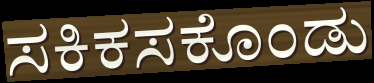
ಸಕಿಕಸಕೊಂಡು